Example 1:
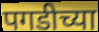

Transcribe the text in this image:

पगडीच्या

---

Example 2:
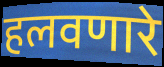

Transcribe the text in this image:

हलवणारे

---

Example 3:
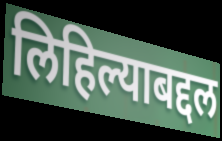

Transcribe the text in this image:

लिहिल्याबद्दल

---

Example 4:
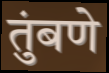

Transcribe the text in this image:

तुंबणे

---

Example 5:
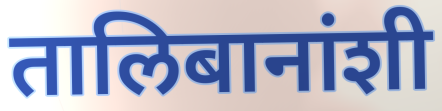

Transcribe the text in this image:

तालिबानांशी